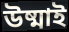
উষ্মাই